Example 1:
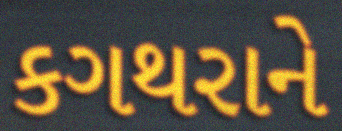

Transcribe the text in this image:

કગથરાને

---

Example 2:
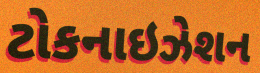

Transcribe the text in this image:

ટોકનાઇઝેશન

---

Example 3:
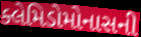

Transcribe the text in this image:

ક્લેમિડોમોનાસની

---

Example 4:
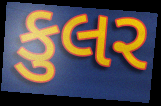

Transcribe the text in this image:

કુલર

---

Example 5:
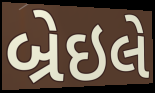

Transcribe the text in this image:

બ્રેઇલે